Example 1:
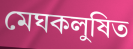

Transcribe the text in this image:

মেঘকলুষিত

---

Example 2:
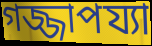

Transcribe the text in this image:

গজ্জাপয্যা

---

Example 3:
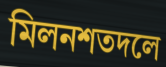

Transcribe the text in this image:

মিলনশতদলে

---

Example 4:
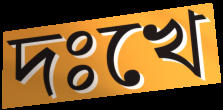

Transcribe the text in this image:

দঃখে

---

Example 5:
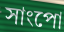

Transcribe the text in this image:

সাংপো